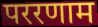
पररणाम